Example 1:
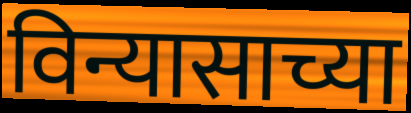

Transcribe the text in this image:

विन्यासाच्या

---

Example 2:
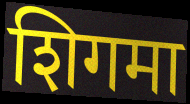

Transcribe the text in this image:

शिगमा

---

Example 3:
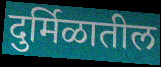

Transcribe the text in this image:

दुर्मिळातील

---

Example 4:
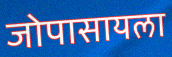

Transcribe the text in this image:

जोपासायला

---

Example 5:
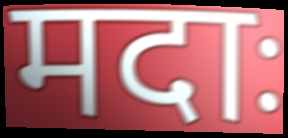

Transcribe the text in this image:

मदाः